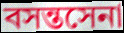
বসন্তসেনা